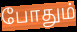
போதும்